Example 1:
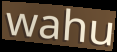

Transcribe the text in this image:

wahu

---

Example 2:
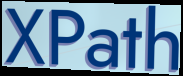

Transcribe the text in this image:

XPath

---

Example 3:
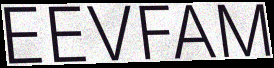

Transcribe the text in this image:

EEVFAM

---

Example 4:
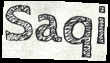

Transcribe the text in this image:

Saqi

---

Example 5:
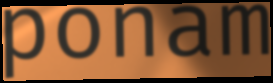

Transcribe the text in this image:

ponam